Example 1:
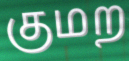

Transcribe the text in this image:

குமற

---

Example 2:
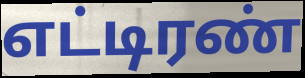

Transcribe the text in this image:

எட்டிரண்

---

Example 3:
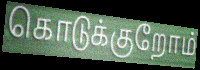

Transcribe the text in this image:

கொடுக்குறோம்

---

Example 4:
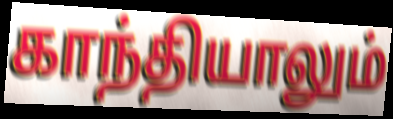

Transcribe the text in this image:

காந்தியாலும்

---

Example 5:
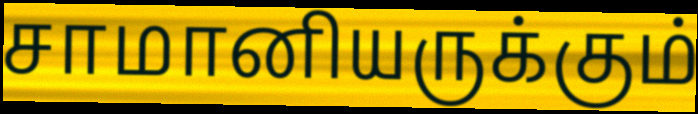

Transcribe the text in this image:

சாமானியருக்கும்